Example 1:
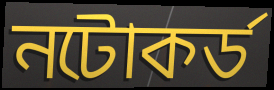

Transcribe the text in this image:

নটোকর্ড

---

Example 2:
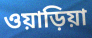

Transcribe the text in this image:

ওয়াড়িয়া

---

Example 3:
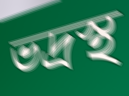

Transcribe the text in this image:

ভদ্রস্থ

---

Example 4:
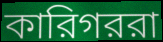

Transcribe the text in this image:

কারিগররা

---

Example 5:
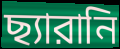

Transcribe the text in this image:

ছ্যারানি